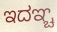
ಇದಞ್ಚ